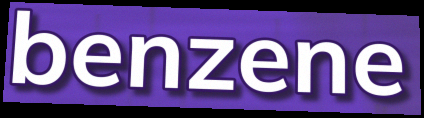
benzene